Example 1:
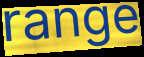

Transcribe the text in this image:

range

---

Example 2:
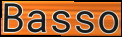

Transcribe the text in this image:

Basso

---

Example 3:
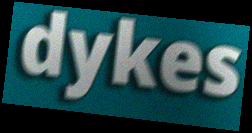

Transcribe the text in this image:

dykes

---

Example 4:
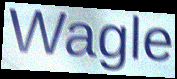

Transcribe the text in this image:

Wagle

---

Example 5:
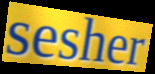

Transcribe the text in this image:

sesher